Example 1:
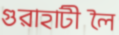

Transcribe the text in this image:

গুৱাহাটীলৈ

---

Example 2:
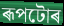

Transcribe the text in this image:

ৰূপটোৰ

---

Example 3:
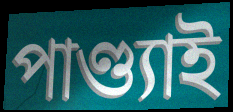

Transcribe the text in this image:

পাণ্ড্যাই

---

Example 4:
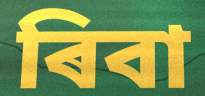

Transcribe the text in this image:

ৰিবা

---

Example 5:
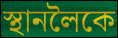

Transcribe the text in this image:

স্থানলৈকে